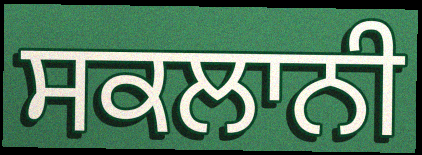
ਸਕਲਾਨੀ